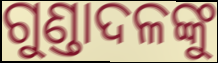
ଗୁଣ୍ଡାଦଳଙ୍କୁ